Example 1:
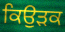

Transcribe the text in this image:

ਕਿਉੜਕ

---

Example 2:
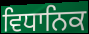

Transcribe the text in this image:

ਵਿਧਾਨਿਕ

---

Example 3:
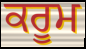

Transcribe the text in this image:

ਕਰੂਮ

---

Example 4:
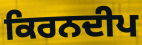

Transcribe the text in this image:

ਕਿਰਨਦੀਪ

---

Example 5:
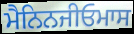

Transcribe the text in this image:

ਮੈਨਿਨਜੀਓਮਾਸ